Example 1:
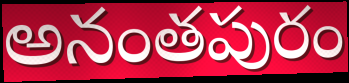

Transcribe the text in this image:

అనంతపురం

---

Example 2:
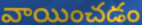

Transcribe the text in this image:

వాయించడం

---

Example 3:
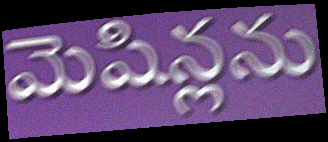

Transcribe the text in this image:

మెషిన్లను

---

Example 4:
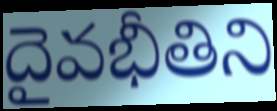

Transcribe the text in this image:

దైవభీతిని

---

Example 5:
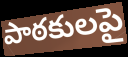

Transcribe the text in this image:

పాఠకులపై